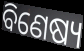
ବିଣେଷ୍ୟ